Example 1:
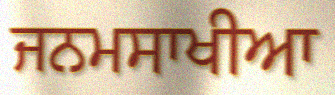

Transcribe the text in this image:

ਜਨਮਸਾਖੀਆ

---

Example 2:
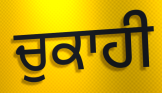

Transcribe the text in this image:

ਚੁਕਾਹੀ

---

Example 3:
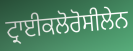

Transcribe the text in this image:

ਟ੍ਰਾਈਕਲੋਰੋਸੀਲੇਨ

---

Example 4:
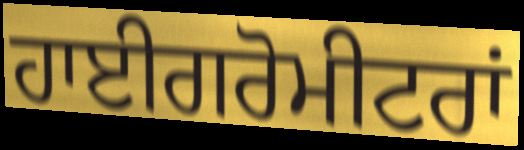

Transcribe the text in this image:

ਹਾਈਗਰੋਮੀਟਰਾਂ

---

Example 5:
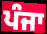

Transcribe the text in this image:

ਪੰਜਾ